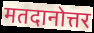
मतदानोत्तर